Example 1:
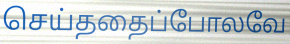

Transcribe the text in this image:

செய்ததைப்போலவே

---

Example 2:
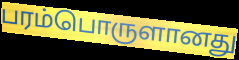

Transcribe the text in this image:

பரம்பொருளானது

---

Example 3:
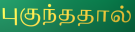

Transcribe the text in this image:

புகுந்ததால்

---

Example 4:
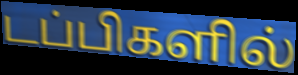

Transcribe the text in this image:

டப்பிகளில்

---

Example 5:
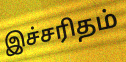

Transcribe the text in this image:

இச்சரிதம்